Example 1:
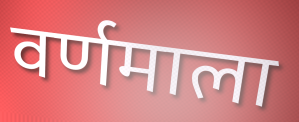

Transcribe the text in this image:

वर्णमाला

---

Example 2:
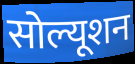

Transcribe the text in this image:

सोल्‍यूशन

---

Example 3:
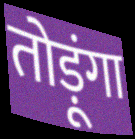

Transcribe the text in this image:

तोड़ूंगा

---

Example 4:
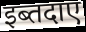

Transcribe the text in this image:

इब्तदाए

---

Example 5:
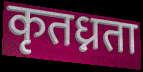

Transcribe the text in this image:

कृतध्नता